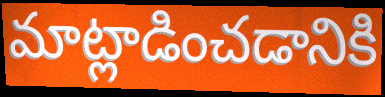
మాట్లాడించడానికి